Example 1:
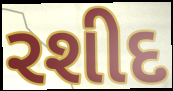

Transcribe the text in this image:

રશીદ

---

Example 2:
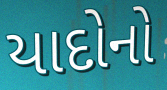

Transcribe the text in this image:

યાદોનો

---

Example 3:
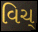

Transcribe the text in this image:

વિચ્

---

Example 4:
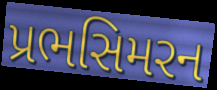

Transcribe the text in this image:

પ્રભસિમરન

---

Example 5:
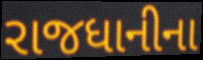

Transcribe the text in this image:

રાજધાનીના